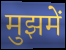
मुझमें